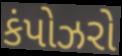
કંપોઝરો